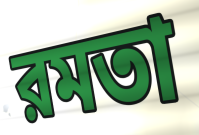
রমতা